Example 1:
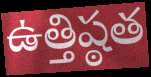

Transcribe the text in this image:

ఉత్తిష్ఠత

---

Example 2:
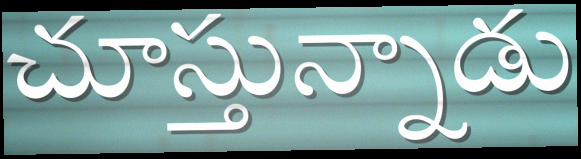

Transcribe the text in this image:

చూస్తున్నాడు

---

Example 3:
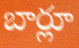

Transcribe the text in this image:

బార్లూ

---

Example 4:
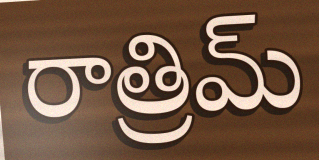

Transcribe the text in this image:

రాత్రిమ్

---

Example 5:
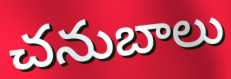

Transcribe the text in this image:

చనుబాలు